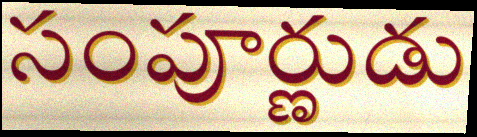
సంపూర్ణుడు